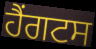
ਹੈਂਗਟਸ